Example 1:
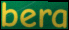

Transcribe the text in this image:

bera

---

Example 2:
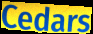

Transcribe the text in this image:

Cedars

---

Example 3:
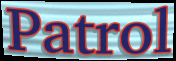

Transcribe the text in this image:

Patrol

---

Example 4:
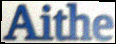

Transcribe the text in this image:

Aithe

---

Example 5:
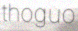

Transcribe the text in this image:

thoguo